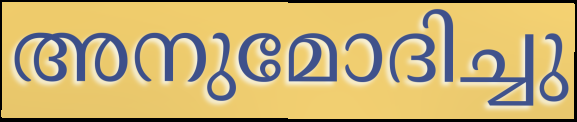
അനുമോദിച്ചു